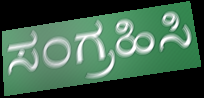
ಸಂಗ್ರಹಿಸಿ